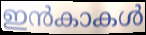
ഇൻകാകൾ